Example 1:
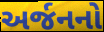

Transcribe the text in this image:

અર્જનનો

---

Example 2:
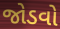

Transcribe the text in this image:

જોડવો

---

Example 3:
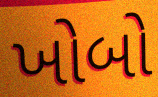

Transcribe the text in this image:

ખોબો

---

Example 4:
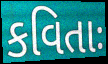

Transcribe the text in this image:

કવિતાઃ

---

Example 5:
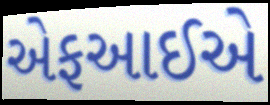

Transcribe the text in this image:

એફઆઈએ